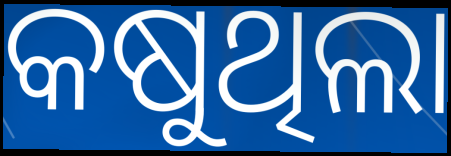
କଷୁଥିଲା